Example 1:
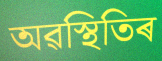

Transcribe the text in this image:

অৱস্থিতিৰ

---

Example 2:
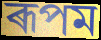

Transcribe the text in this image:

ৰূপম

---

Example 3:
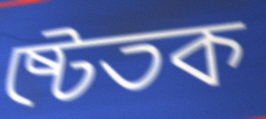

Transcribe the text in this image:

ষ্টেতক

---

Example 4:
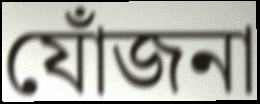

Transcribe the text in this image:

যোঁজনা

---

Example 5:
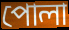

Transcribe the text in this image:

পোলা